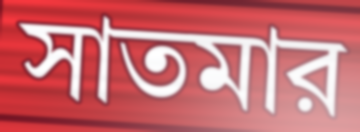
সাতমার